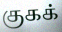
குகக்